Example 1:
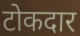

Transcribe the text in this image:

टोकदार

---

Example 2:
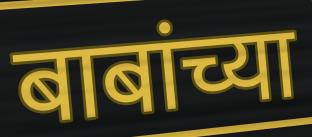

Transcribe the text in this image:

बाबांच्या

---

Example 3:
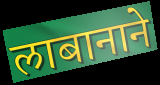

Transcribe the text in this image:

लाबानाने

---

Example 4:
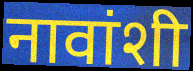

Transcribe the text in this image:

नावांशी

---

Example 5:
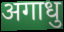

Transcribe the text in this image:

अगाधु